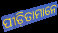
ପୀଡ଼ିତାମାନେ